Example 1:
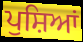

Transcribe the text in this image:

ਪੁਸ਼ਿਆਂ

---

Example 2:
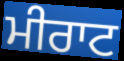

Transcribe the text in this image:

ਮੀਰਾਟ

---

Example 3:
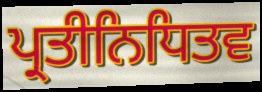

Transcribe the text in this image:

ਪ੍ਰਤੀਨਿਧਿਤਵ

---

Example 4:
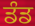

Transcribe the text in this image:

ਡੰਡ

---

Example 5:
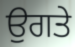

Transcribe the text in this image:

ਉਗਤੇ